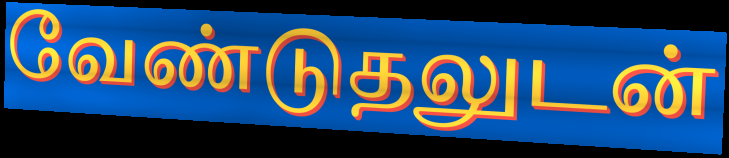
வேண்டுதலுடன்